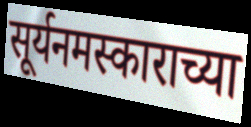
सूर्यनमस्काराच्या